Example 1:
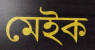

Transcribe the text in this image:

মেইক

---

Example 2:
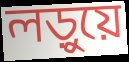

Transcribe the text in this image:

লড়ুয়ে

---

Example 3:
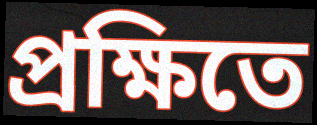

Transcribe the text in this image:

প্রক্ষিতে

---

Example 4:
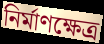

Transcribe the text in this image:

নির্মাণক্ষেত্র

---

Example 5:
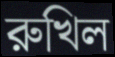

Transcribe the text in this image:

রুখিল